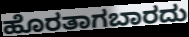
ಹೊರತಾಗಬಾರದು